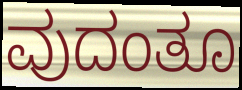
ವುದಂತೂ